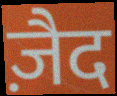
ज़ैद